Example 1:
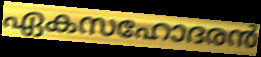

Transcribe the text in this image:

ഏകസഹോദരൻ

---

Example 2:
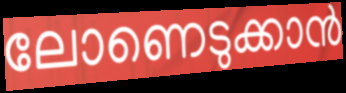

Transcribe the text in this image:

ലോണെടുക്കാൻ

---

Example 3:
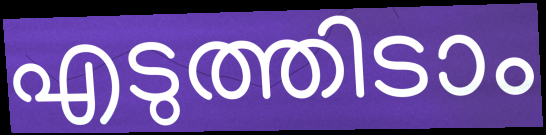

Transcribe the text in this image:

എടുത്തിടാം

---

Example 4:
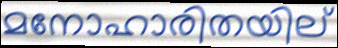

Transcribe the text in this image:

മനോഹാരിതയില്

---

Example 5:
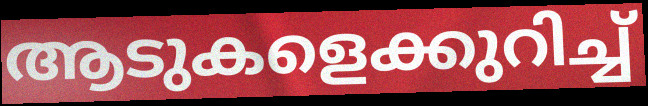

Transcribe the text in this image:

ആടുകളെക്കുറിച്ച്